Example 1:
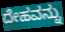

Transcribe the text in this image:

ದೇಹವನ್ನು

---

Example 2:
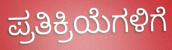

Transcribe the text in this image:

ಪ್ರತಿಕ್ರಿಯೆಗಳಿಗೆ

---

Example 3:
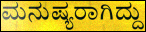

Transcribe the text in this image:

ಮನುಷ್ಯರಾಗಿದ್ದು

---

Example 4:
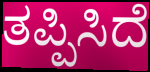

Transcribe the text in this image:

ತಪ್ಪಿಸಿದೆ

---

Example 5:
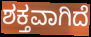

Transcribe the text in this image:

ಶಕ್ತವಾಗಿದೆ